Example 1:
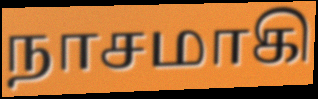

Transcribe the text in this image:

நாசமாகி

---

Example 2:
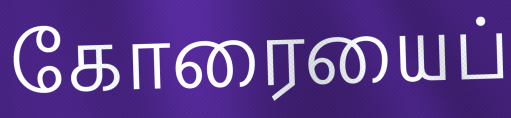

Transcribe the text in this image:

கோரையைப்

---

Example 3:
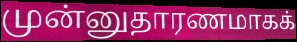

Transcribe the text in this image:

முன்னுதாரணமாகக்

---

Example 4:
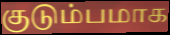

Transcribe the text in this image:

குடும்பமாக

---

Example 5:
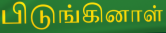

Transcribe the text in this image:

பிடுங்கினாள்